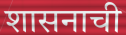
शासनाची